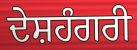
ਦੇਸ਼ਹੰਗਰੀ